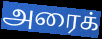
அரைக்